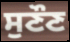
ਸੁਣੌਣ